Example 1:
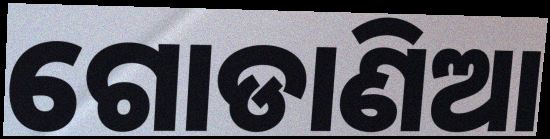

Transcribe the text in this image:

ଗୋଡାଣିଆ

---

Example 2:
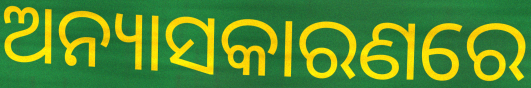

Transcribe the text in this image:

ଅନ୍ୟାସକାରଣରେ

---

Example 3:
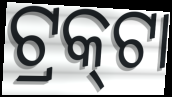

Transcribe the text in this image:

ଟ୍ରକ୍‌ଟା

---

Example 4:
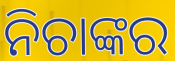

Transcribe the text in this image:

ନିଚାଙ୍କର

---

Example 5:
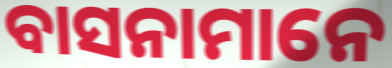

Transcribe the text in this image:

ବାସନାମାନେ